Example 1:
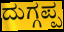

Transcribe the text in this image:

ದುಗ್ಗಪ್ಪ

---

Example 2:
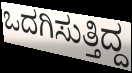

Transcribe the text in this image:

ಒದಗಿಸುತ್ತಿದ್ದ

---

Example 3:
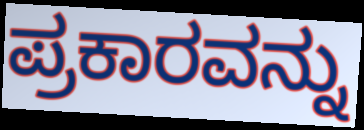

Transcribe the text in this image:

ಪ್ರಕಾರವನ್ನು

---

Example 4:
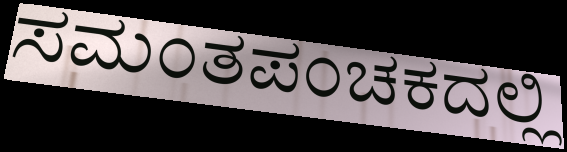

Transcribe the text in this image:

ಸಮಂತಪಂಚಕದಲ್ಲಿ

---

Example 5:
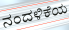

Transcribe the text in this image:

ನಂದಳಿಕೆಯ